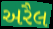
અરૈલ